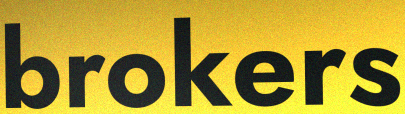
brokers